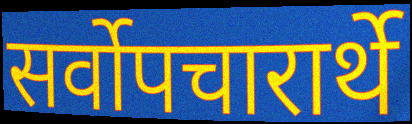
सर्वोपचारार्थे